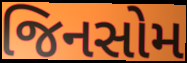
જિનસોમ